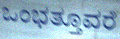
ಒಂಭತ್ತೂವರೆ